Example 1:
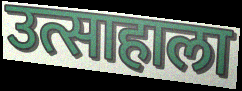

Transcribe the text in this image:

उत्साहाला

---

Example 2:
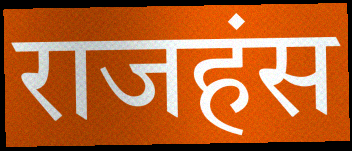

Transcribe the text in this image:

राजहंस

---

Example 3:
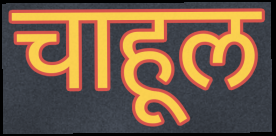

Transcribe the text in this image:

चाहूल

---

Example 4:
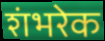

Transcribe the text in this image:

शंभरेक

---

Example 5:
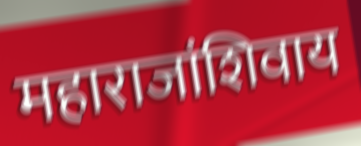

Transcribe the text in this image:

महाराजांशिवाय